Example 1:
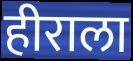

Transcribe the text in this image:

हीराला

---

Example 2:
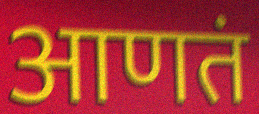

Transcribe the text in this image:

आणतं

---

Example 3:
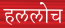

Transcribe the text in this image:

हललोच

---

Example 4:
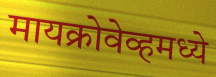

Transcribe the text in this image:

मायक्रोवेव्हमध्ये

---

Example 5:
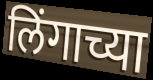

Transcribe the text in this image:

लिंगाच्या